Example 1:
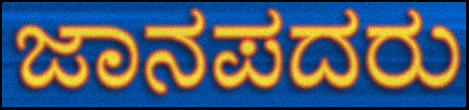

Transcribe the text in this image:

ಜಾನಪದರು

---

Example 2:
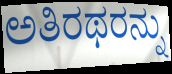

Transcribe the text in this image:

ಅತಿರಥರನ್ನು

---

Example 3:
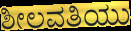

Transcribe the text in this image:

ಶೀಲವತಿಯು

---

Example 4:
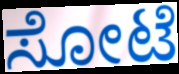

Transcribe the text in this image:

ಸೋಟೆ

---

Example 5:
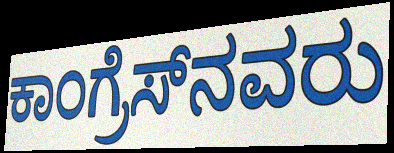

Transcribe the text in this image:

ಕಾಂಗ್ರೆಸ್‌ನವರು